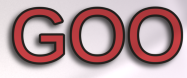
GOO